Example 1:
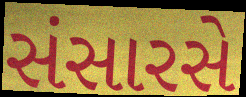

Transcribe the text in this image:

સંસારસે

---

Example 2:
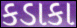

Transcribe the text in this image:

કડાકા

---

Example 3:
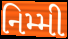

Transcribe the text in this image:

નિમ્મી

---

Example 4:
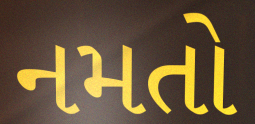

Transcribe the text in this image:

નમતો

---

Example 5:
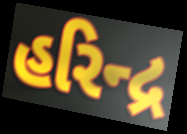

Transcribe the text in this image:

હરિન્દ્ર